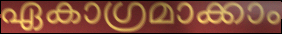
ഏകാഗ്രമാക്കാം